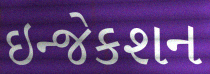
ઇન્જેકશન